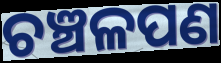
ଚଞ୍ଚଳପଣ